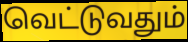
வெட்டுவதும்